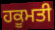
ਹਕੂਮਤੀ